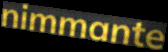
nimmante